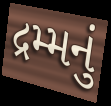
દ્રમ્મનું